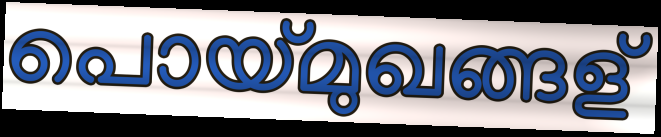
പൊയ്മുഖങ്ങള്